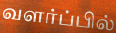
வளர்ப்பில்